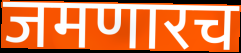
जमणारच